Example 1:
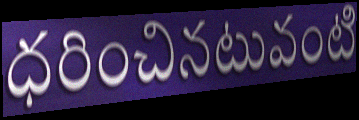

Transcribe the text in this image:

ధరించినటువంటి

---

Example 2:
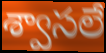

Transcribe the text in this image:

శ్వాసలే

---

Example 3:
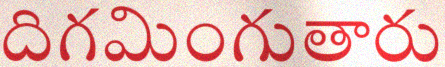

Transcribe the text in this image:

దిగమింగుతారు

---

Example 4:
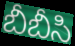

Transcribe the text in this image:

బీబీసి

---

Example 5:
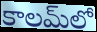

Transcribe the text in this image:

కాలమ్‍లో